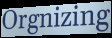
Orgnizing